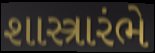
શાસ્ત્રારંભે